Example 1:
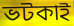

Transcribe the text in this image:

ভটকাই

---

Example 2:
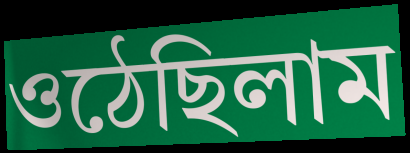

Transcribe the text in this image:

ওঠেছিলাম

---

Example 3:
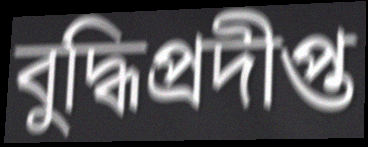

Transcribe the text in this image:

বুদ্ধিপ্রদীপ্ত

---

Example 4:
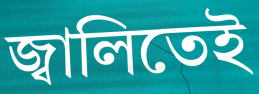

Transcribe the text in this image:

জ্বালিতেই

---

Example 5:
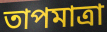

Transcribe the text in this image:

তাপমাত্রা